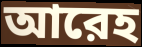
আরেহ